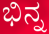
ಭಿನ್ನ